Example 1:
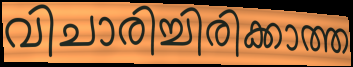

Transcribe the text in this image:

വിചാരിച്ചിരിക്കാത്ത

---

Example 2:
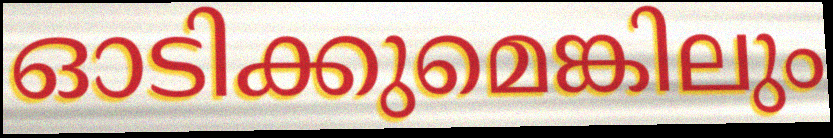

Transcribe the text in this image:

ഓടിക്കുമെങ്കിലും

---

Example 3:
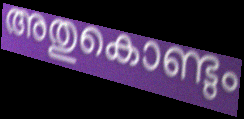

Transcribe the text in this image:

അതുകൊണ്ടും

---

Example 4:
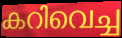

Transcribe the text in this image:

കറിവെച്ച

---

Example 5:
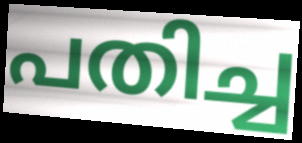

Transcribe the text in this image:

പതിച്ച